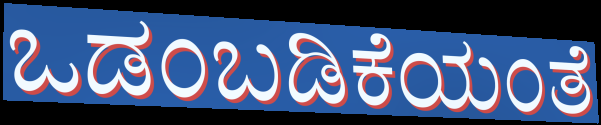
ಒಡಂಬಡಿಕೆಯಂತೆ